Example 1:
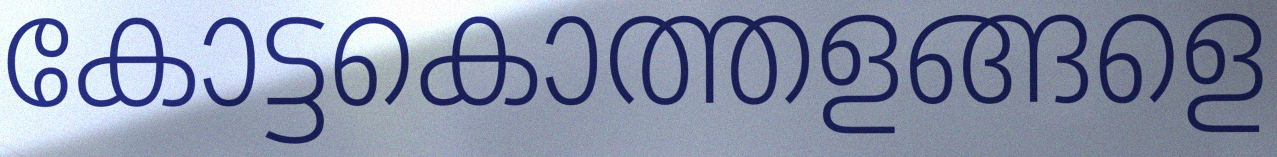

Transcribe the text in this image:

കോട്ടകൊത്തളങ്ങളെ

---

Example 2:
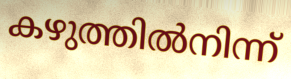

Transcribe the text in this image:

കഴുത്തിൽനിന്ന്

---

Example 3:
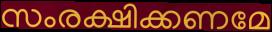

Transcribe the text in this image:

സംരക്ഷിക്കണമേ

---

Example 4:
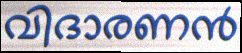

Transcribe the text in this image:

വിദാരണൻ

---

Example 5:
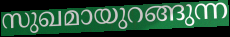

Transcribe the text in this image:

സുഖമായുറങ്ങുന്ന